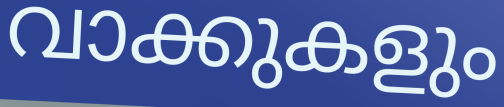
വാക്കുകളും